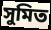
সুমিত